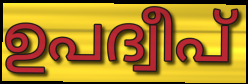
ഉപദ്വീപ്